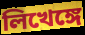
লিখেঙ্গে